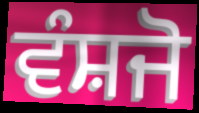
ਵੰਸ਼ਜੋ